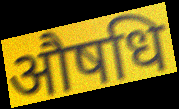
औषधि